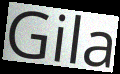
Gila